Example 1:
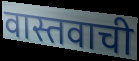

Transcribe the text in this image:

वास्तवाची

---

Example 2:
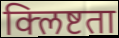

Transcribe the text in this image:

क्‍लिष्टता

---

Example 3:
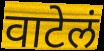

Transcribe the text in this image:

वाटेलं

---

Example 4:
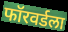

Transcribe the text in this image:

फॉरवर्डला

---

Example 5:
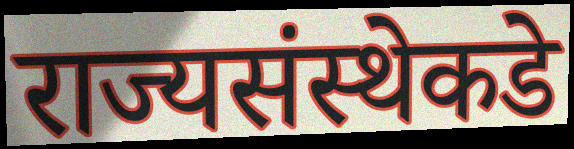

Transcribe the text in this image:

राज्यसंस्थेकडे